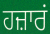
ਹਜ਼ਾਰਂ